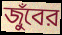
জুঁবের